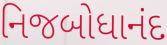
નિજબોધાનંદ